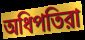
অধিপতিরা